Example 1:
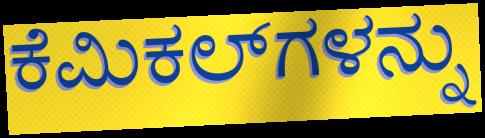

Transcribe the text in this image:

ಕೆಮಿಕಲ್‌ಗಳನ್ನು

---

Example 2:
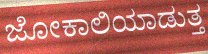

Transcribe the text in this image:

ಜೋಕಾಲಿಯಾಡುತ್ತ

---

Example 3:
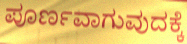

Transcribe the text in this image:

ಪೂರ್ಣವಾಗುವುದಕ್ಕೆ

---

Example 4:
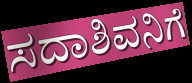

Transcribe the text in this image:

ಸದಾಶಿವನಿಗೆ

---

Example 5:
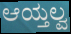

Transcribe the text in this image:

ಆಯ್ತಲ್ವ